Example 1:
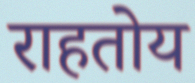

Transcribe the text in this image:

राहतोय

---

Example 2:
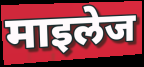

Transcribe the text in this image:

माइलेज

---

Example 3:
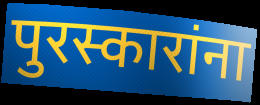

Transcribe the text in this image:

पुरस्कारांना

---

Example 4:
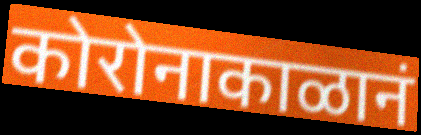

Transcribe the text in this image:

कोरोनाकाळानं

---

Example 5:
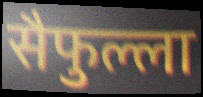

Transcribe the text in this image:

सैफुल्ला